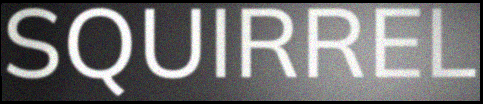
SQUIRREL